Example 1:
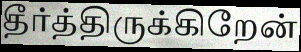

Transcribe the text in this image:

தீர்த்திருக்கிறேன்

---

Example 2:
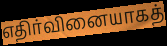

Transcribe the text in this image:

எதிர்வினையாகத்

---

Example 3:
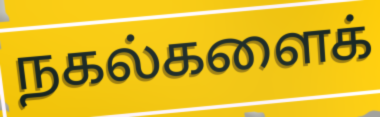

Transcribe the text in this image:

நகல்களைக்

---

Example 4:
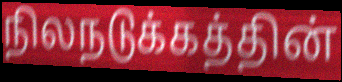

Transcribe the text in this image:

நிலநடுக்கத்தின்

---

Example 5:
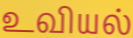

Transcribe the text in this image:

உவியல்